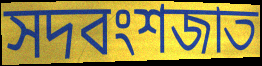
সদবংশজাত